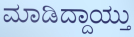
ಮಾಡಿದ್ದಾಯ್ತು